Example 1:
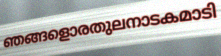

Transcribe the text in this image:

ഞങ്ങളൊരതുലനാടകമാടി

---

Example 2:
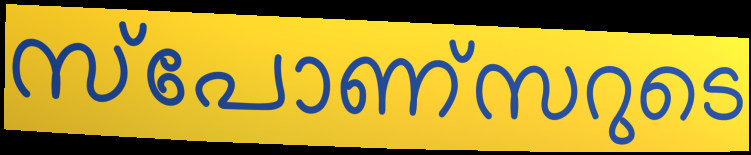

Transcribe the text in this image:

സ്പോണ്സറുടെ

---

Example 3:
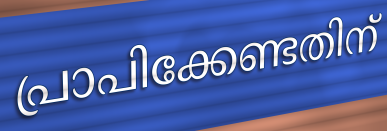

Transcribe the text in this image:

പ്രാപിക്കേണ്ടതിന്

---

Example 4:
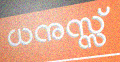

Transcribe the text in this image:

ധനുസ്സ്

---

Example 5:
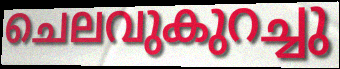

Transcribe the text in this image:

ചെലവുകുറച്ചു